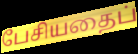
பேசியதைப்